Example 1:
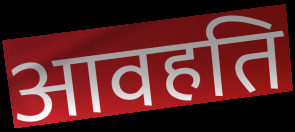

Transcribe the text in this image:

आवहति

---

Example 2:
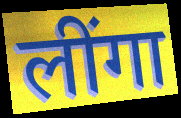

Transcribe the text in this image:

लींगा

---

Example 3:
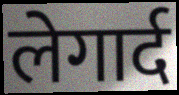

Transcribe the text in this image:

लेगार्द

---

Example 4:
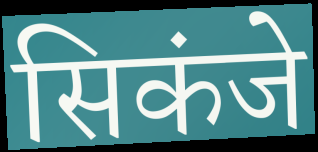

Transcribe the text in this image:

सिकंजे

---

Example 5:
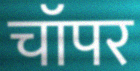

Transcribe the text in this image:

चॉपर